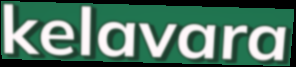
kelavara